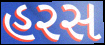
હરસ